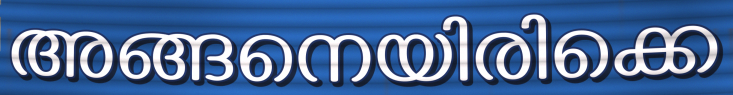
അങ്ങനെയിരിക്കെ